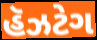
હૅઝટેગ